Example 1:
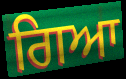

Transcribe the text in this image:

ਗਿਆ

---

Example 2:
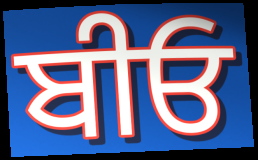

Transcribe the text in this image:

ਬੀਓ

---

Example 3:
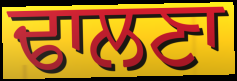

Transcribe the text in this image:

ਢਾਲਣਾ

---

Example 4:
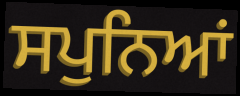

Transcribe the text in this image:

ਸਪੁਨਿਆਂ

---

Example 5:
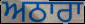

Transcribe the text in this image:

ਅਠਾਰਾ